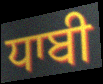
ਧਾਬੀ